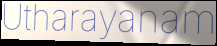
Utharayanam